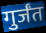
गुर्जंत